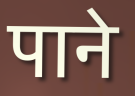
पाने